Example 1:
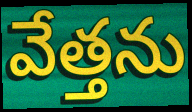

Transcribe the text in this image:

వేత్తను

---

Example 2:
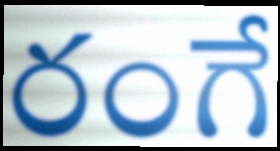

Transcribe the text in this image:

రంగే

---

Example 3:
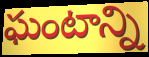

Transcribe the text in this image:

ఘంటాన్ని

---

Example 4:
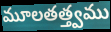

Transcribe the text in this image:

మూలతత్త్వము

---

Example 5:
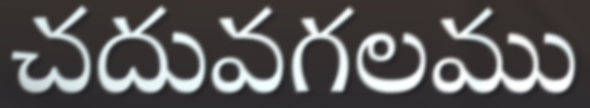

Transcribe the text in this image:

చదువగలము